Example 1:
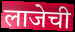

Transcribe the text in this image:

लाजेची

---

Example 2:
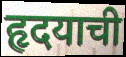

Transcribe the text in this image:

हृदयाची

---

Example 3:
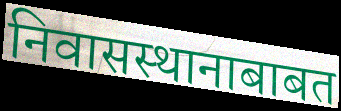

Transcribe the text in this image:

निवासस्थानाबाबत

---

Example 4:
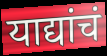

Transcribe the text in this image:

याद्यांचं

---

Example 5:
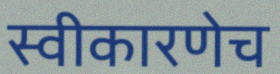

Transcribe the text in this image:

स्वीकारणेच